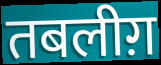
तबलीग़